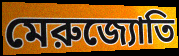
মেরুজ্যোতি